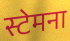
स्टेमना